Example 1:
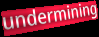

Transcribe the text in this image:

undermining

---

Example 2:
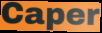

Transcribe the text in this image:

Caper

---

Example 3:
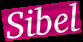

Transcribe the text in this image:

Sibel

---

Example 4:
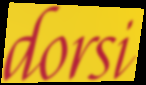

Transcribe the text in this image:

dorsi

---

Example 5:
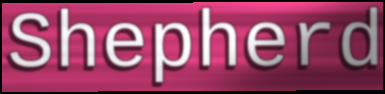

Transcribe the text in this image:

Shepherd